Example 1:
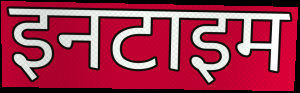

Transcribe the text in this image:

इनटाइम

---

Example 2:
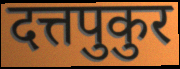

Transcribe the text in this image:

दत्तपुकुर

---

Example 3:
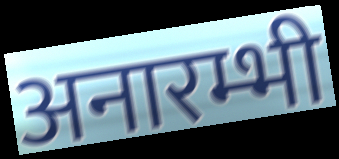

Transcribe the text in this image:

अनारम्भी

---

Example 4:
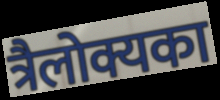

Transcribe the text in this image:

त्रैलोक्यका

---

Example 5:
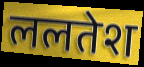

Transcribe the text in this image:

ललतेश